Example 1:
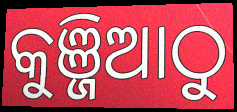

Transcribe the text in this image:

କୁଞ୍ଜିଆଠୁ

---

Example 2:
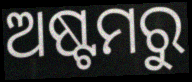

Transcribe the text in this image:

ଅଷ୍ଟମରୁ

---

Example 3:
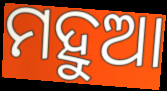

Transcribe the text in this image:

ମହୁଆ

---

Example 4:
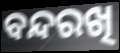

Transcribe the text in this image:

ବନ୍ଦରଖି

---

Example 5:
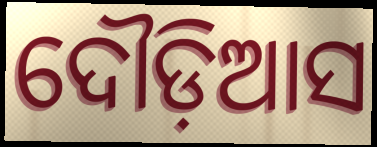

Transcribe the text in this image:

ଦୌଡ଼ିଆସ